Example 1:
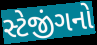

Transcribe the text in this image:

સ્ટેજીંગનો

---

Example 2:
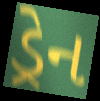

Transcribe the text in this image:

ડ્રેન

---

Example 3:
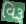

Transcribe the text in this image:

વિરૂ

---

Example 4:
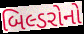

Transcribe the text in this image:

બિલ્ડરોનો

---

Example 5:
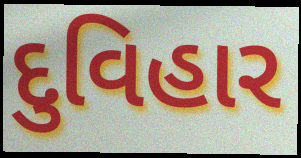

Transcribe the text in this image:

દુવિહાર